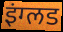
इंग्लड